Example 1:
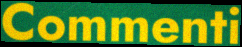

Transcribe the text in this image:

Commenti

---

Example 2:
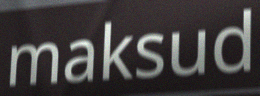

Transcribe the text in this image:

maksud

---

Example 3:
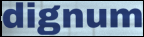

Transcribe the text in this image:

dignum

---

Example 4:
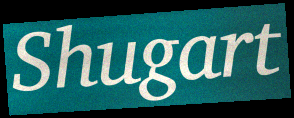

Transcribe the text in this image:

Shugart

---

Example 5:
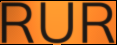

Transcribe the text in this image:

RUR